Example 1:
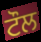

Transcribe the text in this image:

ਟੌਲ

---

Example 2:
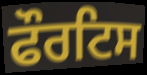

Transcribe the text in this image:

ਫੌਰਟਿਸ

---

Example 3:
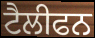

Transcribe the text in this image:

ਟੈਲੀਫਨ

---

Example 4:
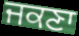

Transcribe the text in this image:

ਜਕਣਾ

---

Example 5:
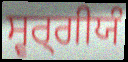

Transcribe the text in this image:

ਸ੍ਵਰ੍ਗੀਯੰ